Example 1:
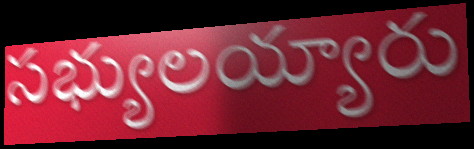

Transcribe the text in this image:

సభ్యులయ్యారు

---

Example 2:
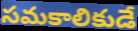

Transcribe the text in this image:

సమకాలికుడే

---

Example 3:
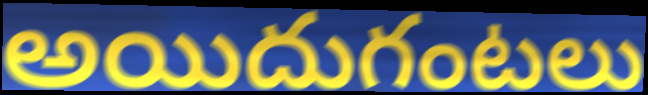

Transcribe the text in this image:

అయిదుగంటలు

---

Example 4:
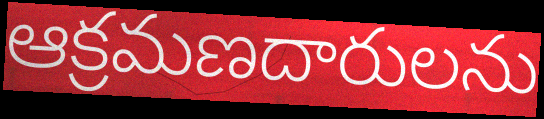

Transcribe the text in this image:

ఆక్రమణదారులను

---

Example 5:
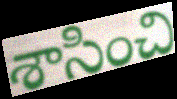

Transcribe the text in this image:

శాసించి